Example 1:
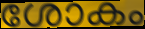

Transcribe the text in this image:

ശോകം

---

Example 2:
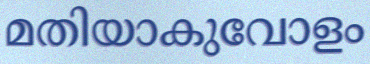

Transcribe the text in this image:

മതിയാകുവോളം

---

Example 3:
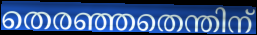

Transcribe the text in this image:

തെരഞ്ഞതെന്തിന്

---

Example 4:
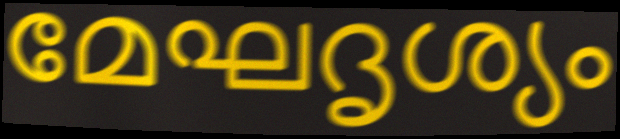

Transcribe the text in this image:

മേഘദൃശ്യം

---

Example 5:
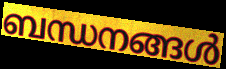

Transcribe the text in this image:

ബന്ധനങ്ങൾ